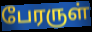
பேரருள்